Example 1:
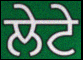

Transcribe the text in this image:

ਲੇਟੇ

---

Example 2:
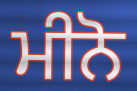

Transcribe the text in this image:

ਮੀਨੋ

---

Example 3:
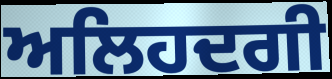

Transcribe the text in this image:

ਅਲਿਹਦਗੀ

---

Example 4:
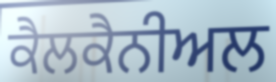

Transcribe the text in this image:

ਕੈਲਕੈਨੀਅਲ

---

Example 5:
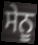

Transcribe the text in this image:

ਸੇਨੂ